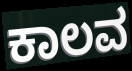
ಕಾಲವ